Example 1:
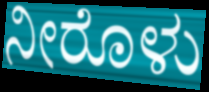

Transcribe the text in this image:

ನೀರೊಳು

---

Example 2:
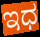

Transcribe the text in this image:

ಇಧ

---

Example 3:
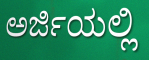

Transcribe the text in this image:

ಅರ್ಜಿಯಲ್ಲಿ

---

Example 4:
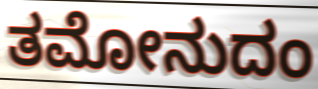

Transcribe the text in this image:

ತಮೋನುದಂ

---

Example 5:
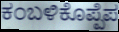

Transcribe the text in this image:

ಕಂಬಳಿಕೊಪ್ಪೆಪ